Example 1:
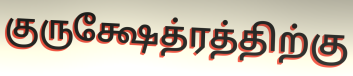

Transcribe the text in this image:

குருக்ஷேத்ரத்திற்கு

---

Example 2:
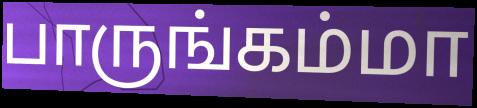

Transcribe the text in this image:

பாருங்கம்மா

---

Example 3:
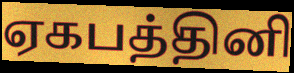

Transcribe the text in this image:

ஏகபத்தினி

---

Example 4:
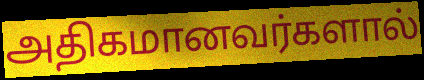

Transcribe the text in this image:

அதிகமானவர்களால்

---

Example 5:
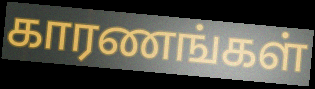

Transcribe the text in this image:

காரணங்கள்